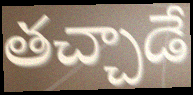
తచ్చాడే